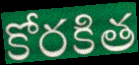
కోరకిత